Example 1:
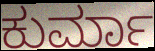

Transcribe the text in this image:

ಕುರ್ಮಾ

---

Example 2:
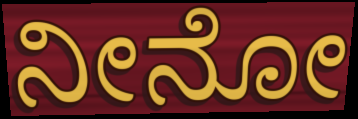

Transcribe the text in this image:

ನೀನೋ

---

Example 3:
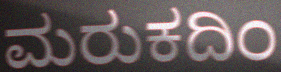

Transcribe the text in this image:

ಮರುಕದಿಂ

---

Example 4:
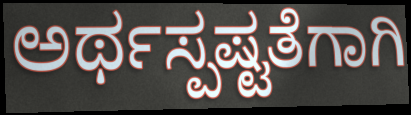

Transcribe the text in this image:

ಅರ್ಥಸ್ಪಷ್ಟತೆಗಾಗಿ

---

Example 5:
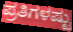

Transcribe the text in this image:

ಪ್ರತಿಗಳಷ್ಟು